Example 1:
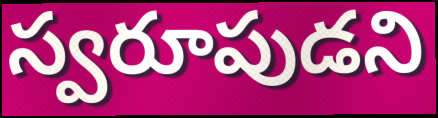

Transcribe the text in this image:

స్వరూపుడని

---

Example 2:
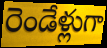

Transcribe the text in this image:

రెండేళ్లుగా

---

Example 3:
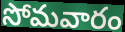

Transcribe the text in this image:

సోమవారం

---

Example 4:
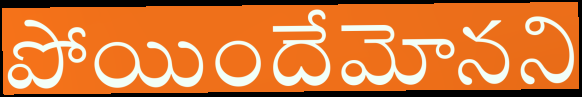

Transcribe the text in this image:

పోయిందేమోనని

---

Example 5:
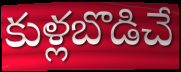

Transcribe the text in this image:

కుళ్లబొడిచే